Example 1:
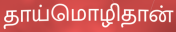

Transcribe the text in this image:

தாய்மொழிதான்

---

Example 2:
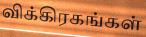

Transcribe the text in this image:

விக்கிரகங்கள்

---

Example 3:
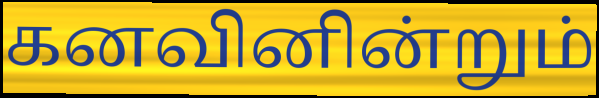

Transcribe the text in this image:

கனவினின்றும்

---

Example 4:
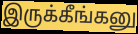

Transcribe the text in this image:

இருக்கீங்கனு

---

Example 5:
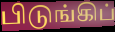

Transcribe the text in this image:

பிடுங்கிப்